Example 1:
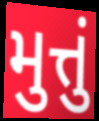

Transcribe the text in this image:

મુત્તું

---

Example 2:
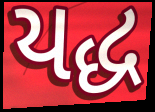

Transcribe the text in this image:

યદ્ધ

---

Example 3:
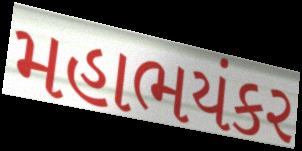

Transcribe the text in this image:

મહાભયંકર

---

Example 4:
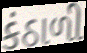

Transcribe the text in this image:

કંઠાળી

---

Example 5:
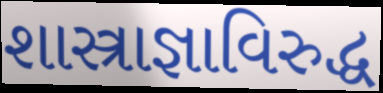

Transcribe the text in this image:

શાસ્ત્રાજ્ઞાવિરુદ્ધ